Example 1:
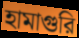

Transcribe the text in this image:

হামাগুরি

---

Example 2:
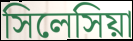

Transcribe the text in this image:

সিলেসিয়া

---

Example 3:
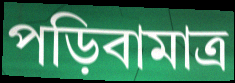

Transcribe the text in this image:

পড়িবামাত্র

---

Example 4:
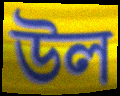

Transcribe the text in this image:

উল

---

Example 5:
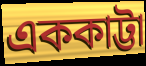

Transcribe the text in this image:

এককাট্টা